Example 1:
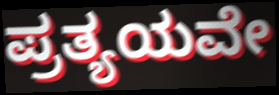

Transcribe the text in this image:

ಪ್ರತ್ಯಯವೇ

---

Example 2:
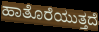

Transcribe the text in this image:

ಹಾತೊರೆಯುತ್ತದೆ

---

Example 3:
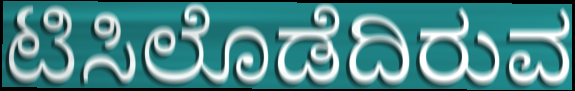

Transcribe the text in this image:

ಟಿಸಿಲೊಡೆದಿರುವ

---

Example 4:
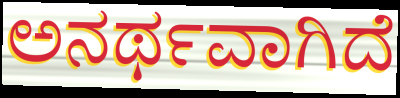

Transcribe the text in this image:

ಅನರ್ಥವಾಗಿದೆ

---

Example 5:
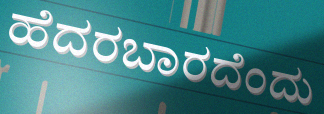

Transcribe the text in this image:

ಹೆದರಬಾರದೆಂದು